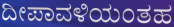
ದೀಪಾವಳಿಯಂತಹ